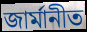
জাৰ্মানীত